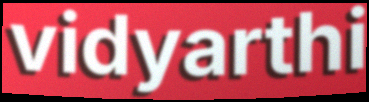
vidyarthi